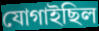
যোগাইছিল